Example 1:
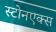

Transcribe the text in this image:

स्टोनएक्स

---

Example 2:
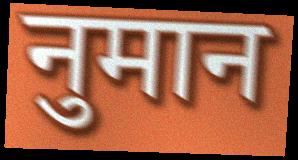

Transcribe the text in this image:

नुमान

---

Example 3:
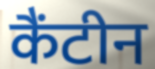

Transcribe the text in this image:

कैंटीन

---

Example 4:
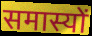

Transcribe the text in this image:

समास्यों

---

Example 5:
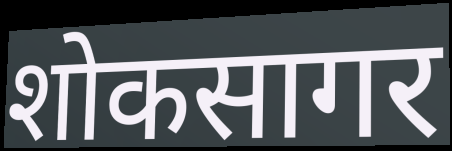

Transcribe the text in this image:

शोकसागर